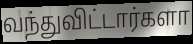
வந்துவிட்டார்களா